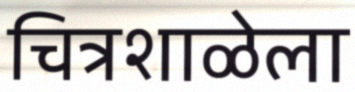
चित्रशाळेला